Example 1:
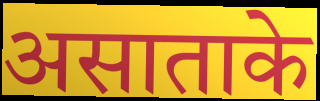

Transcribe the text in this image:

असाताके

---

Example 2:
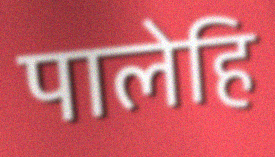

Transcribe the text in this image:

पालेहि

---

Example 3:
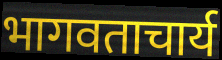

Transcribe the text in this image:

भागवताचार्य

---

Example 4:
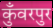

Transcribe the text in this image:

कुँवरपुर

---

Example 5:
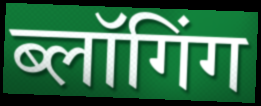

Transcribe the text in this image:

ब्‍लॉगिंग